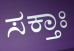
ಸಕ್ತಾಃ